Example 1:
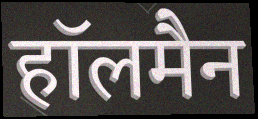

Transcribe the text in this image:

हॉलमैन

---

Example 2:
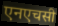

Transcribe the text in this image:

एनएचसी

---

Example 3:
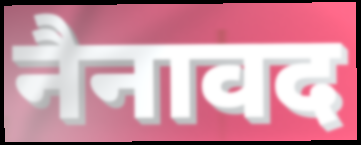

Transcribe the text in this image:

नैनावद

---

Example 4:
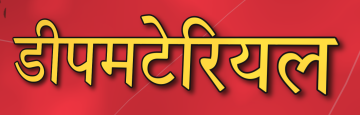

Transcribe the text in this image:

डीपमटेरियल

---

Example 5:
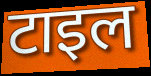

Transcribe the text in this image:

टाइल